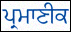
ਪ੍ਰਮਾਣੀਕ